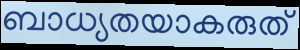
ബാധ്യതയാകരുത്